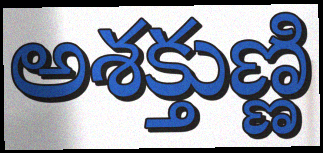
అశక్తుణ్ణి